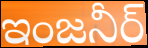
ఇంజనీర్